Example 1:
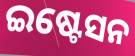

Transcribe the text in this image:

ଇଷ୍ଟେସନ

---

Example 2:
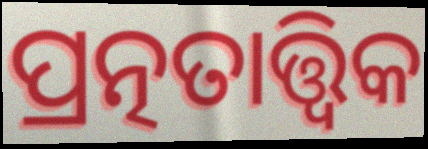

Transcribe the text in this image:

ପ୍ରତ୍ନତାତ୍ତ୍ଵିକ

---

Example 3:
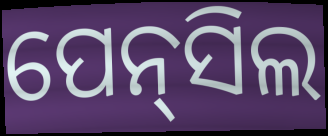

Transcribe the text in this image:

ପେନ୍‌ସିଲ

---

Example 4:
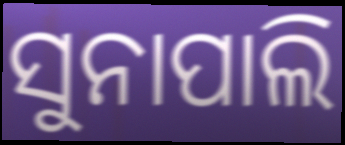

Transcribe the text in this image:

ସୁନାପାଲି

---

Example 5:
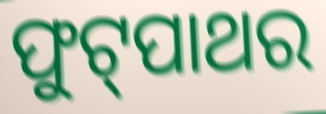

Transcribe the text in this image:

ଫୁଟ୍‌ପାଥର